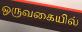
ஒருவகையில்